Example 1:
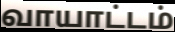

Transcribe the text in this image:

வாயாட்டம்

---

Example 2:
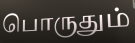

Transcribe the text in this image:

பொருதும்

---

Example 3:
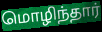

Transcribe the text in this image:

மொழிந்தார்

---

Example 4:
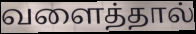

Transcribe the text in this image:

வளைத்தால்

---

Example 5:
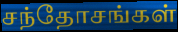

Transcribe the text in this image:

சந்தோசங்கள்